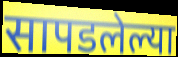
सापडलेल्या